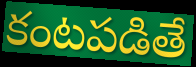
కంటపడితే